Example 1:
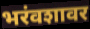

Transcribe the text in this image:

भरंवशावर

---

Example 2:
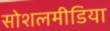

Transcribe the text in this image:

सोशलमीडिया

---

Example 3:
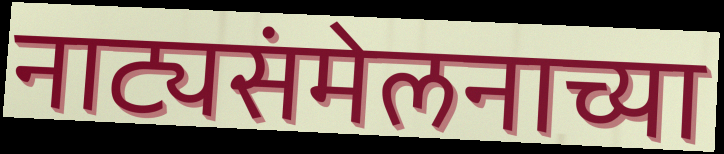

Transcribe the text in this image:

नाट्यसंमेलनाच्या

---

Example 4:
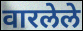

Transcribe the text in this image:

वारलेले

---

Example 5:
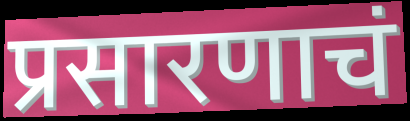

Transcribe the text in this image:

प्रसारणाचं